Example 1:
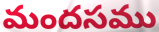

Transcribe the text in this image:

మందసము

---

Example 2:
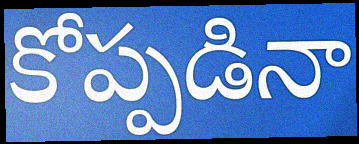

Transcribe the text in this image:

కోప్పడినా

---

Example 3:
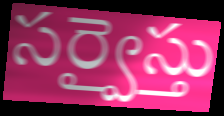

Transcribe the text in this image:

సర్వైస్తు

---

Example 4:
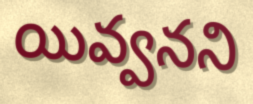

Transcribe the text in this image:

యివ్వనని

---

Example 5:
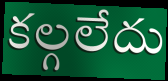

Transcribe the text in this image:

కల్గలేదు